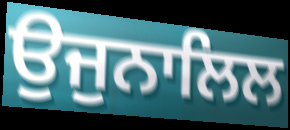
ਉਜੁਨਾਲਿਲ